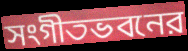
সংগীতভবনের